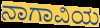
ನಾಗಾವಿಯ